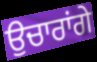
ਉਚਾਰਾਂਗੇ